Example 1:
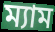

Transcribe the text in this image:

ম্যাম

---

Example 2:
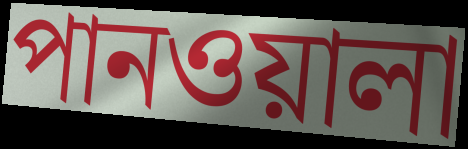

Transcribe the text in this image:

পানওয়ালা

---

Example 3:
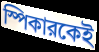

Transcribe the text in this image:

স্পিকারকেই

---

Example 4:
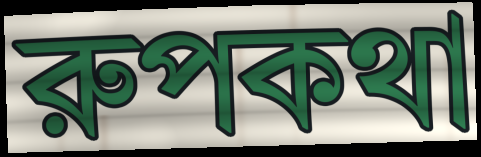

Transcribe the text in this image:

রুপকথা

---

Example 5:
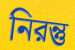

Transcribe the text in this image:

নিরন্তু